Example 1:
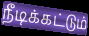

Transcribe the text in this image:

நீடிக்கட்டும்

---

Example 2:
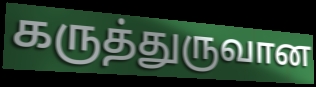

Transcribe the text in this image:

கருத்துருவான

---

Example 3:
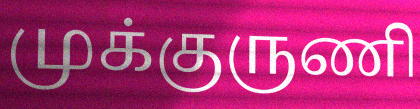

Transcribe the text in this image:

முக்குருணி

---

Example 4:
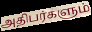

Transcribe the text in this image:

அதிபர்களும்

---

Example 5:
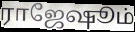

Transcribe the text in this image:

ராஜேஷூம்